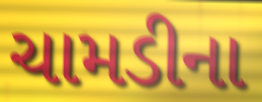
ચામડીના